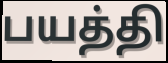
பயத்தி